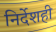
निर्देशही